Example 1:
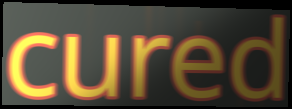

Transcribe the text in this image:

cured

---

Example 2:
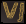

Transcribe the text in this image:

VJ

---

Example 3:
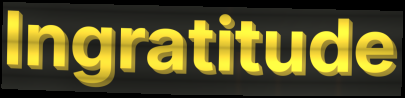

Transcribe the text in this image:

Ingratitude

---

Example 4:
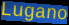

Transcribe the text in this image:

Lugano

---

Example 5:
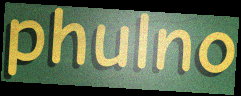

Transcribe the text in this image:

phulno